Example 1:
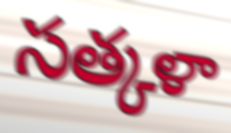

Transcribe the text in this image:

సత్కళా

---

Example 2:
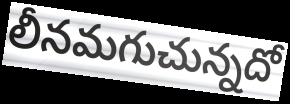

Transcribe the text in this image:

లీనమగుచున్నదో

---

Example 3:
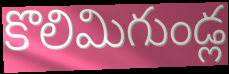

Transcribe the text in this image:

కొలిమిగుండ్ల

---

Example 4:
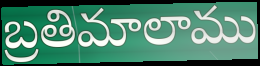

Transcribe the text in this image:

బ్రతిమాలాము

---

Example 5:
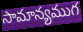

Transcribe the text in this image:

సామాన్యముగ